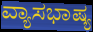
ವ್ಯಾಸಭಾಷ್ಯ